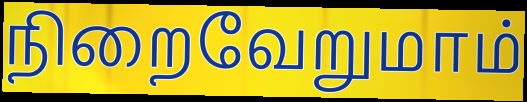
நிறைவேறுமாம்